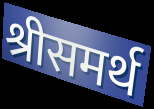
श्रीसमर्थ